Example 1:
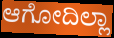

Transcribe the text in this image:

ಆಗೋದಿಲ್ಲಾ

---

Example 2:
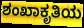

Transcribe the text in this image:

ಶಂಖಾಕೃತಿಯ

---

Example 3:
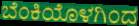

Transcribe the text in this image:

ಬೆಂಕಿಯೊಳಗಿಂದ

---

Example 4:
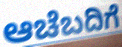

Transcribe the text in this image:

ಆಚೆಬದಿಗೆ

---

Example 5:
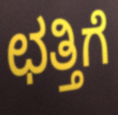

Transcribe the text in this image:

ಛತ್ತಿಗೆ